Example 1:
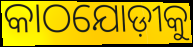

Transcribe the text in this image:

କାଠଯୋଡ଼ୀକୁ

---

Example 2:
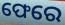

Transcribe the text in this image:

ଫେରେ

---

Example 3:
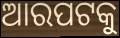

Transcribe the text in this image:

ଆରପଟକୁ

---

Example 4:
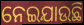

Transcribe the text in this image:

ନେଇଯାଉଛି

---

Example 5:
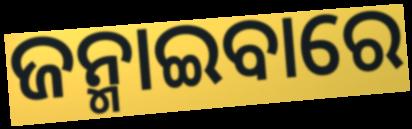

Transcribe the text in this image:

ଜନ୍ମାଇବାରେ